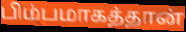
பிம்பமாகத்தான்